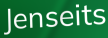
Jenseits